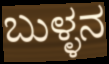
ಬುಳ್ಳನ